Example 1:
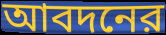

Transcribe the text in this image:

আবদনের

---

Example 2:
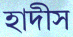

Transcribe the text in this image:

হাদীস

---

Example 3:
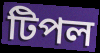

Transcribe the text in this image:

টিপল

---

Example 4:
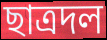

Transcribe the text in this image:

ছাত্রদল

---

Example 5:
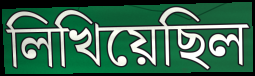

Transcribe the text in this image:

লিখিয়েছিল